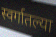
स्वर्गातल्या